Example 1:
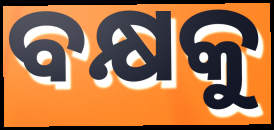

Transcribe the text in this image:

ବକ୍ଷକୁ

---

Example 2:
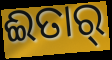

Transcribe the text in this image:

ଈତାର୍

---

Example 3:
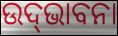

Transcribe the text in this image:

ଉଦ୍‍ଭାବନା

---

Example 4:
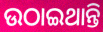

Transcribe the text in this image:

ଉଠାଇଥାନ୍ତି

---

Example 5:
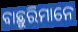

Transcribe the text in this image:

ବାଛୁରିମାନେ